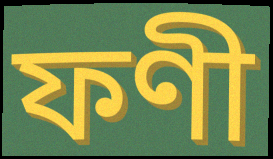
ফণী